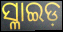
ସ୍ଳାଇଡ଼